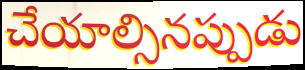
చేయాల్సినప్పుడు